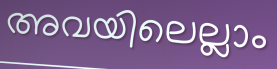
അവയിലെല്ലാം